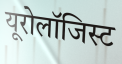
यूरोलॉजिस्ट